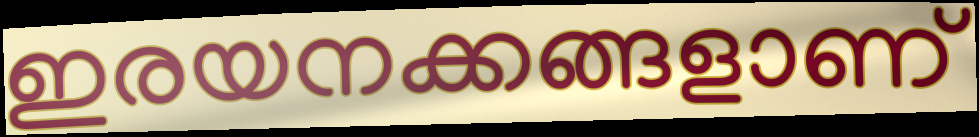
ഇരയനക്കങ്ങളാണ്